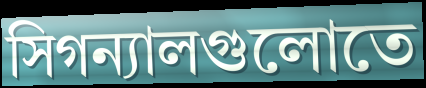
সিগন্যালগুলোতে